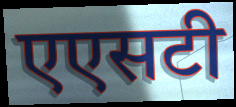
एएसटी